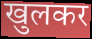
खुलकर